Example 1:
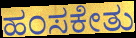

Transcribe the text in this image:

ಹಂಸಕೇತು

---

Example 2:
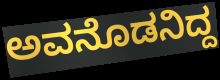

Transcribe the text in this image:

ಅವನೊಡನಿದ್ದ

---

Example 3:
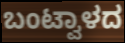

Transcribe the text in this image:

ಬಂಟ್ವಾಳದ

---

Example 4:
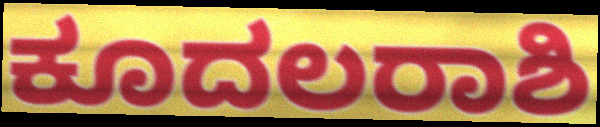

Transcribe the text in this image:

ಕೂದಲರಾಶಿ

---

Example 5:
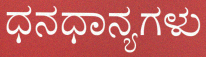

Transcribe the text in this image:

ಧನಧಾನ್ಯಗಳು